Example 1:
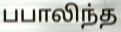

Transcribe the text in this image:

பபாலிந்த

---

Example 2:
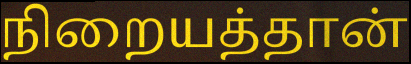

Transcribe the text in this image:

நிறையத்தான்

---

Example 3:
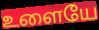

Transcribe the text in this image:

உளையே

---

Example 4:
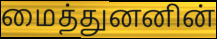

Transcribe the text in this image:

மைத்துனனின்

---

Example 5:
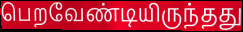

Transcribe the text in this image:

பெறவேண்டியிருந்தது